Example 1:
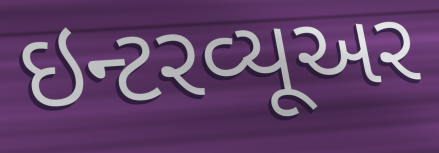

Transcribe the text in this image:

ઇન્ટરવ્યૂઅર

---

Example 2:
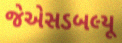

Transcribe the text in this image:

જેએસડબલ્યૂ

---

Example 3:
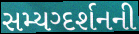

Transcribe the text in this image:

સમ્યગ્દર્શનની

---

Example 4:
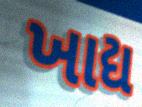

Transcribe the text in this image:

ખાદ્ય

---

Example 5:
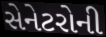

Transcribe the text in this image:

સેનેટરોની